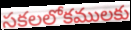
సకలలోకములకు